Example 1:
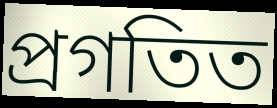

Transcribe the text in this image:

প্ৰগতিত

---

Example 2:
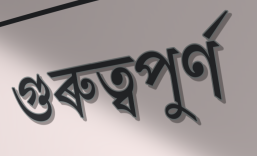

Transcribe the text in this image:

গুৰুত্বপুৰ্ণ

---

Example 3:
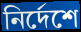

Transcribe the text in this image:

নিৰ্দেশে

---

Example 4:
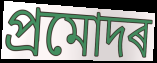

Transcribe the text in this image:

প্ৰমোদৰ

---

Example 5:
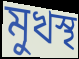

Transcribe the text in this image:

মুখস্থ